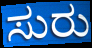
ಸುರು